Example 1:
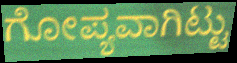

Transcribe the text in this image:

ಗೋಪ್ಯವಾಗಿಟ್ಟು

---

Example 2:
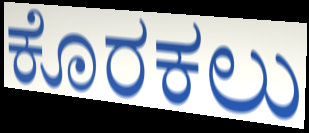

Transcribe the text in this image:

ಕೊರಕಲು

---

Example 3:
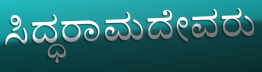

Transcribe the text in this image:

ಸಿದ್ಧರಾಮದೇವರು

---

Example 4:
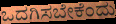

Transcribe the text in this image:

ಒದಗಿಸಬೇಕೆಂದು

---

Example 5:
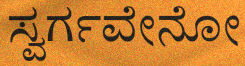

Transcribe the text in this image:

ಸ್ವರ್ಗವೇನೋ